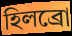
হিলব্রো